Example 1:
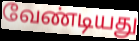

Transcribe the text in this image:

வேண்டியது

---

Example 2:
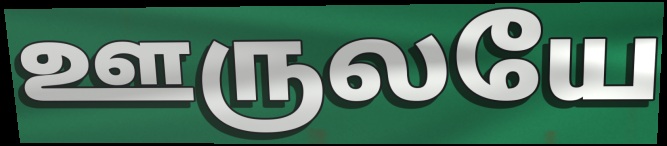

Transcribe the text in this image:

ஊருலயே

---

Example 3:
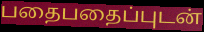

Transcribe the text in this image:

பதைபதைப்புடன்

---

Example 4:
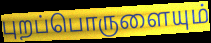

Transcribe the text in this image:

புறப்பொருளையும்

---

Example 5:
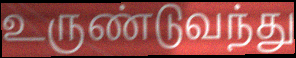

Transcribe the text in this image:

உருண்டுவந்து